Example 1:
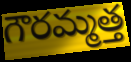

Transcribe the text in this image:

గౌరమ్మత్త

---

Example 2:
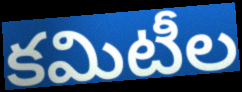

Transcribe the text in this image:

కమిటీల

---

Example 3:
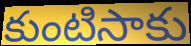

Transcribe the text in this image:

కుంటిసాకు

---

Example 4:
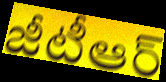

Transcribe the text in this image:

జీటీఆర్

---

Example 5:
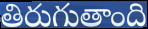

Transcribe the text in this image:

తిరుగుతాంది